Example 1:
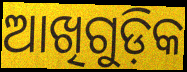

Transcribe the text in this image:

ଆଖିଗୁଡ଼ିକ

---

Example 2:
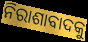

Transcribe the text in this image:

ନିରାଶାବାଦକୁ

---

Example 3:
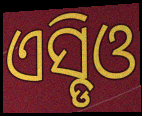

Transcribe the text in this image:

ଏସ୍ଡିଓ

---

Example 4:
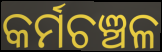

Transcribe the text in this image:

କର୍ମଚଞ୍ଚଳ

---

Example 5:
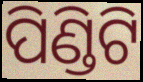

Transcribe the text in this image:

ପିଣ୍ଡିଟି